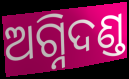
ଅଗ୍ନିଦଣ୍ଡ